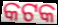
କଟକ